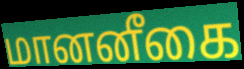
மானனீகை